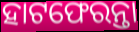
ହାଟଫେରନ୍ତା